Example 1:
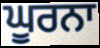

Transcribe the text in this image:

ਘੂਰਨਾ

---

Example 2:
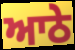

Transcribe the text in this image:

ਆਠੇ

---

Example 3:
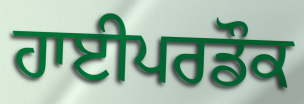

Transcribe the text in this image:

ਹਾਈਪਰਡੌਕ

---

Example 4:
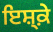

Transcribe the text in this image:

ਇਸ਼੍ਕ਼ੇ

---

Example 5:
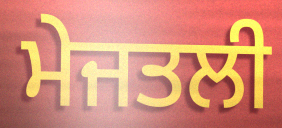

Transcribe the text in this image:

ਮੇਜਤਲੀ